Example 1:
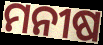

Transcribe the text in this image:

ମନୀଷ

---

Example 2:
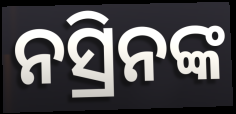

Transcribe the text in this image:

ନସ୍ରିନଙ୍କ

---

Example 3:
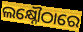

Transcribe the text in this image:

ଲକ୍ଷ୍ନୌଠାରେ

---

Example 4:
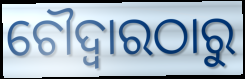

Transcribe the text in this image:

ଚୌଦ୍ୱାରଠାରୁ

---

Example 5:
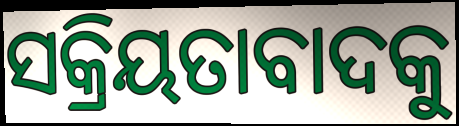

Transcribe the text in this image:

ସକ୍ରିୟତାବାଦକୁ